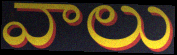
వాలు